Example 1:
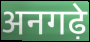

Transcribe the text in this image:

अनगढ़े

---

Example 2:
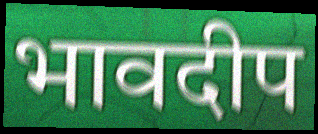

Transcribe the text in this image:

भावदीप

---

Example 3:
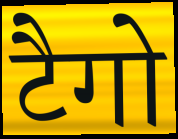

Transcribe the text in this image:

टैगो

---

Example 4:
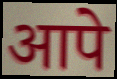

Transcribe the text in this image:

आपे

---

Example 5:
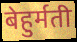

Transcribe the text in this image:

बेहुर्मती